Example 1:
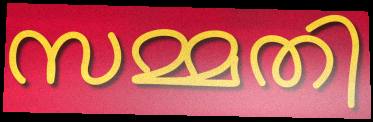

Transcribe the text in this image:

സമ്മതി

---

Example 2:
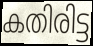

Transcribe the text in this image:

കതിരിട്ട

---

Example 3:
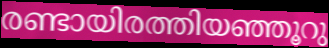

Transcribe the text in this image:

രണ്ടായിരത്തിയഞ്ഞൂറു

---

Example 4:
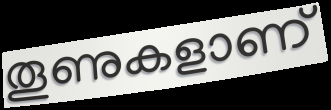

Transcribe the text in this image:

തൂണുകളാണ്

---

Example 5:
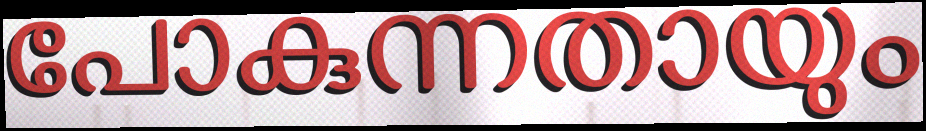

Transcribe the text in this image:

പോകുന്നതായും